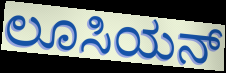
ಲೂಸಿಯನ್